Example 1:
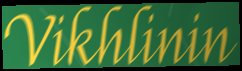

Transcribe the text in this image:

Vikhlinin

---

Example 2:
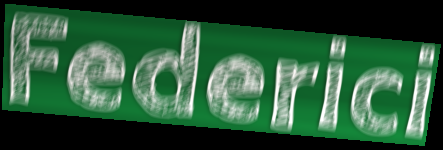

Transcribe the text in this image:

Federici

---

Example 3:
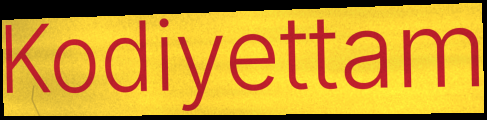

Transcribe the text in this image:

Kodiyettam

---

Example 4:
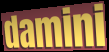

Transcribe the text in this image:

damini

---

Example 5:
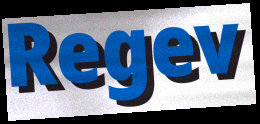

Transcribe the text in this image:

Regev